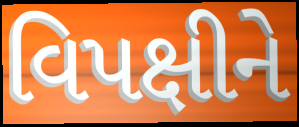
વિપક્ષીને